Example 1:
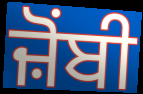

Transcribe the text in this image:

ਜ਼ੋਂਬੀ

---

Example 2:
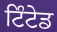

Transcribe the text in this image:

ਟਿੰਟੇਡ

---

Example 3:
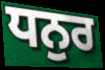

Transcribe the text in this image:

ਧਨੁਰ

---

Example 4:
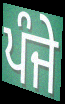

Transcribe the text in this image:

ਪੰਜੇ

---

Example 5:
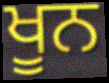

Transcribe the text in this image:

ਖੂਨ